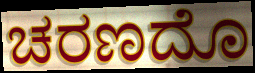
ಚರಣದೊ